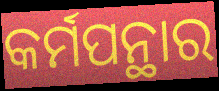
କର୍ମପନ୍ଥାର